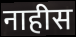
नाहीस